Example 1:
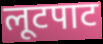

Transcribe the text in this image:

लूटपाट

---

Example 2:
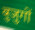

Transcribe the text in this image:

बुजुगों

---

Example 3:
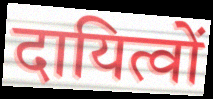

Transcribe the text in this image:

दायित्वों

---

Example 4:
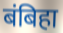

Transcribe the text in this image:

बंबिहा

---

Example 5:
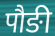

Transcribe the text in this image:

पौङी